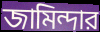
জামিন্দার